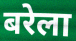
बरेला